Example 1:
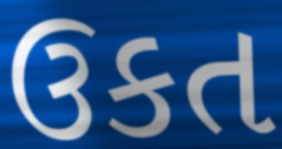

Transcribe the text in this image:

ઉકત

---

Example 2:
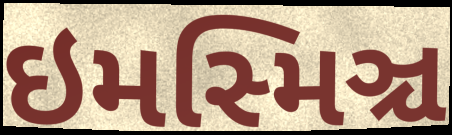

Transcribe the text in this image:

ઇમસ્મિઞ્ચ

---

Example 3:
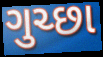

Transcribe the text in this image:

ગુચ્છા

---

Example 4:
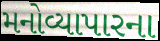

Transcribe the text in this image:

મનોવ્યાપારના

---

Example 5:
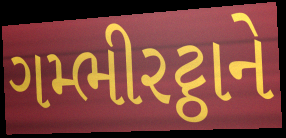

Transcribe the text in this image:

ગમ્ભીરટ્ઠાને